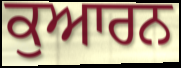
ਕੁਆਰਨ